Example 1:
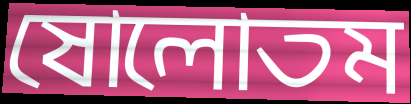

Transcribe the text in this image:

ষোলোতম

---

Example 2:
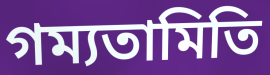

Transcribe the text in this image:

গম্যতামিতি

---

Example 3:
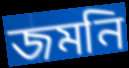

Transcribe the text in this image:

জমনি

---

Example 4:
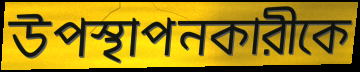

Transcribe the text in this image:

উপস্থাপনকারীকে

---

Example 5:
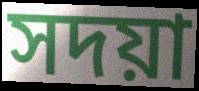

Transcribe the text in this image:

সদয়া